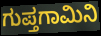
ಗುಪ್ತಗಾಮಿನಿ